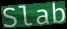
Slab